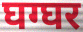
घग्घर